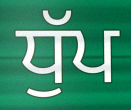
ਧੁੱਪ